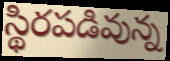
స్థిరపడివున్న